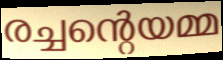
രച്ചന്റെയമ്മ